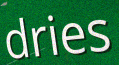
dries